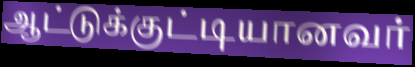
ஆட்டுக்குட்டியானவர்